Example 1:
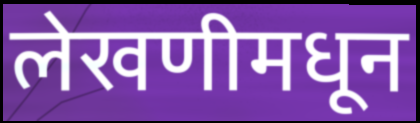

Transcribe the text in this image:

लेखणीमधून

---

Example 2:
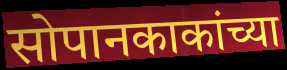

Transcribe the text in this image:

सोपानकाकांच्या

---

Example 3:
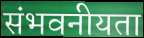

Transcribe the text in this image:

संभवनीयता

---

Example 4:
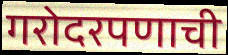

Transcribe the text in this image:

गरोदरपणाची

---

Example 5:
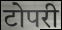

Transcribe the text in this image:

टोपरी